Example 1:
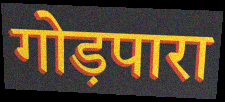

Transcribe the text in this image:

गोड़पारा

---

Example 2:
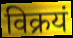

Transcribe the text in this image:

विक्रयं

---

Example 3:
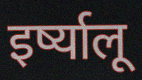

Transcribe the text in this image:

इर्ष्यालू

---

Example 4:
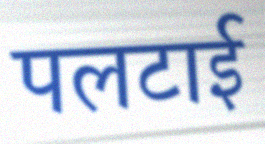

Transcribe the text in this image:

पलटाई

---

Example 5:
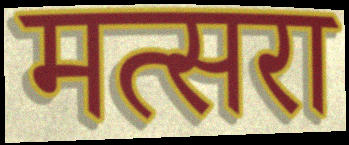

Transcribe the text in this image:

मत्सरा